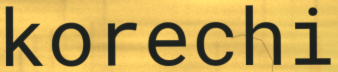
korechi